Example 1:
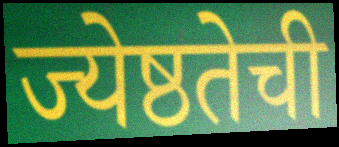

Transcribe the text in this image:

ज्येष्ठतेची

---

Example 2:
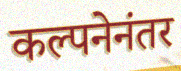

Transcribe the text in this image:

कल्पनेनंतर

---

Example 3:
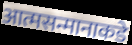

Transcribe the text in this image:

आत्मसन्मानाकडे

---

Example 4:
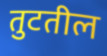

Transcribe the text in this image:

तुटतील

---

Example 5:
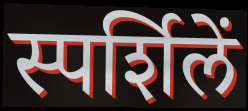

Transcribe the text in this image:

स्पर्शिलें